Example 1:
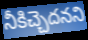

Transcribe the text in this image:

నీకిచ్చెదనని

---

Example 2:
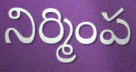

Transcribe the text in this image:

నిర్మింప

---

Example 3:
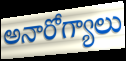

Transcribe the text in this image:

అనారోగ్యాలు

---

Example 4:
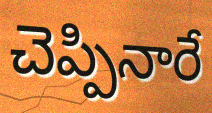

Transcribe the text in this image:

చెప్పినారే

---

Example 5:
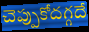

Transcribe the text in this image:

చెప్పుకోదగ్గదే